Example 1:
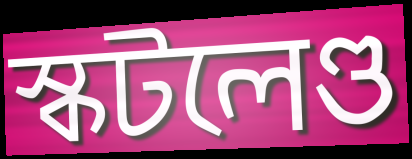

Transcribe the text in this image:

স্কটলেণ্ড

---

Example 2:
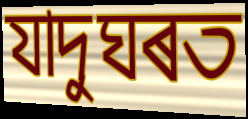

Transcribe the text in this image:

যাদুঘৰত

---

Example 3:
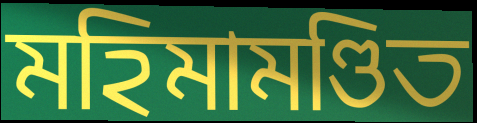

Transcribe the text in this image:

মহিমামণ্ডিত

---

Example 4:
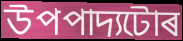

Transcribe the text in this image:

উপপাদ্যটোৰ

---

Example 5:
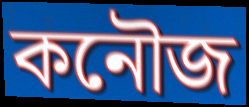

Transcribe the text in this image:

কনৌজ